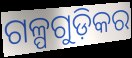
ଗଳ୍ପଗୁଡ଼ିକର